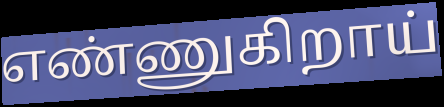
எண்ணுகிறாய்